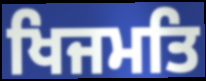
ਖਿਜਮਤਿ